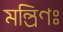
মন্ত্রিণঃ